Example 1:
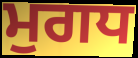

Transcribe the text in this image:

ਮੁਗਧ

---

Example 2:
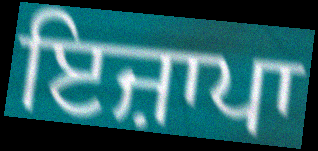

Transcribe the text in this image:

ਇਜ਼ਾਪਾ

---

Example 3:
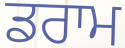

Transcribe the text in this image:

ਡਰਾਮ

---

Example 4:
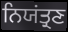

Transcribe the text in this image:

ਨਿਯਂਤ੍ਰਣ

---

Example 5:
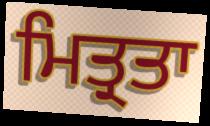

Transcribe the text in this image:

ਮਿਤ੍ਰਤਾ